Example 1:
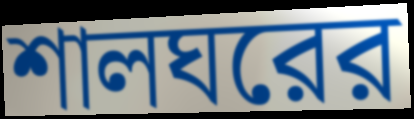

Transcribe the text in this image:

শালঘরের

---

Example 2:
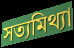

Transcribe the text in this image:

সত্যমিথ্যা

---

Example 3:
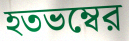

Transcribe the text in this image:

হতভম্বের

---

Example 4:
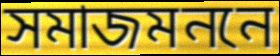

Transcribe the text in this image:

সমাজমননে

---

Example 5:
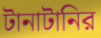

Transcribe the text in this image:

টানাটানির